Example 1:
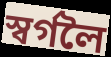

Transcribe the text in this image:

স্বৰ্গলৈ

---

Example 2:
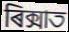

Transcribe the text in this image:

ৰিক্সাত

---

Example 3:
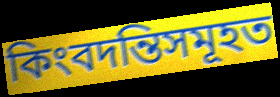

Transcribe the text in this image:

কিংবদন্তিসমূহত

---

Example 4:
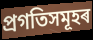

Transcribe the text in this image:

প্ৰগতিসমূহৰ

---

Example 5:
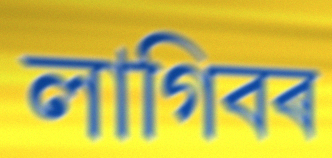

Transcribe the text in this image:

লাগিবৰ